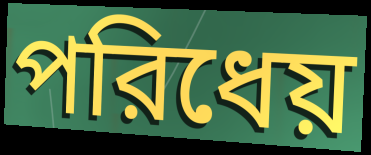
পরিধেয়